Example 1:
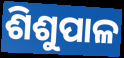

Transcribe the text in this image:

ଶିଶୁପାଳ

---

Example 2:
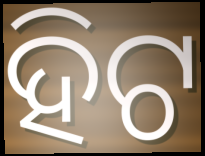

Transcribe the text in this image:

ହିଟ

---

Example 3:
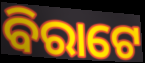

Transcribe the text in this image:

ବିରାଟେ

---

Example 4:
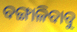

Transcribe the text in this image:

ବଙ୍ଗାଳିବାବୁ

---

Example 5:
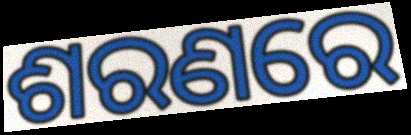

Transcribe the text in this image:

ଶରଣରେ